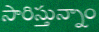
సారిస్తున్నాం